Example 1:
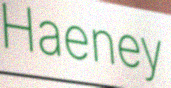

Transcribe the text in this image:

Haeney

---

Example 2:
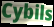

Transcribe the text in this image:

Cybils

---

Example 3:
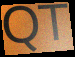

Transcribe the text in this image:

QT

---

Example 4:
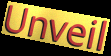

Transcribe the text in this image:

Unveil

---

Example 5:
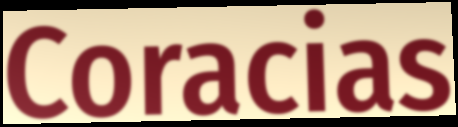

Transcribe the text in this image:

Coracias